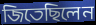
জিতেছিলেন